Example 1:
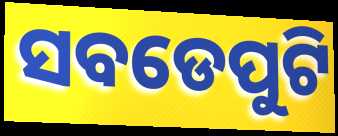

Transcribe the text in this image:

ସବଡେପୁଟି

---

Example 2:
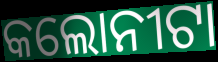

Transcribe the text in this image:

କଲୋନୀଟା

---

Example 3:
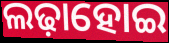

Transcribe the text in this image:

ଲଢ଼ାହୋଇ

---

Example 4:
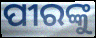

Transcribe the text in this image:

ପୀରଙ୍କୁ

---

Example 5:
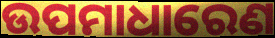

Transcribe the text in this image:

ଉପମାଧାରେଣ